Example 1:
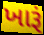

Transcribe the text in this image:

ખારૂં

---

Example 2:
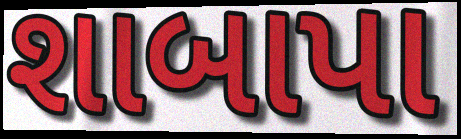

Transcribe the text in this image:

શાબાપા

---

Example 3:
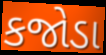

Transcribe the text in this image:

કજોડા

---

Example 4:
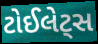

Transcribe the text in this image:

ટોઈલેટ્સ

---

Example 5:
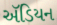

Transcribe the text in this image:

ઍંડિયન